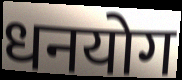
धनयोग